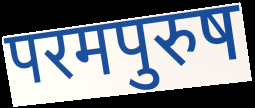
परमपुरुष